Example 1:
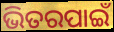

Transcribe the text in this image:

ଭିତରପାଇଁ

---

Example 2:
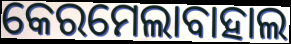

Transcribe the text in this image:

କେରମେଲାବାହାଲ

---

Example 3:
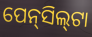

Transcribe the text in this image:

ପେନ୍‌ସିଲ୍‍ଟା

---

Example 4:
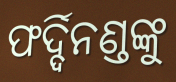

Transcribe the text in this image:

ଫର୍ଦ୍ଦିନଣ୍ଡଙ୍କୁ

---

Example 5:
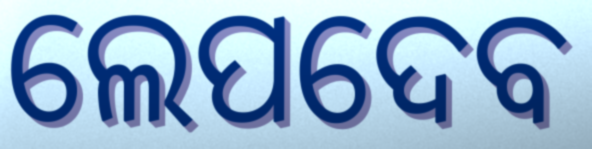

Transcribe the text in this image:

ଲେପଦେବ